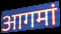
आगमां